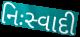
નિઃસ્વાદી